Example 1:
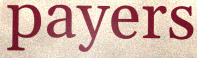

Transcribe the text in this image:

payers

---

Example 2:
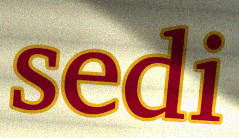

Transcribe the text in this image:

sedi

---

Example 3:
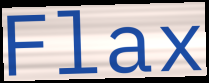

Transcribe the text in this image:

Flax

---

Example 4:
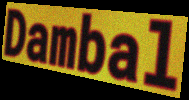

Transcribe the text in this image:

Dambal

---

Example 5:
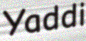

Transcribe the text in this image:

Yaddi